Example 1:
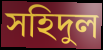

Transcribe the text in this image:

সহিদুল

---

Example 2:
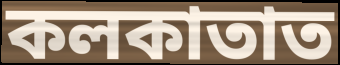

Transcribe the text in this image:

কলকাতাত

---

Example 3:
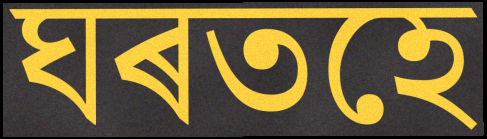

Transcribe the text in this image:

ঘৰতহে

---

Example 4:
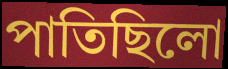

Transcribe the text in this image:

পাতিছিলো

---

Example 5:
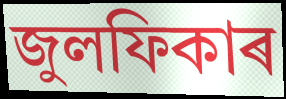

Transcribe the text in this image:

জুলফিকাৰ